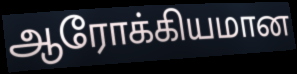
ஆரோக்கியமான